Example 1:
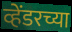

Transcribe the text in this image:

व्हेंडरच्या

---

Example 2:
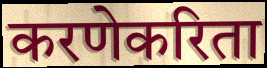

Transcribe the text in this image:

करणेकरिता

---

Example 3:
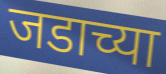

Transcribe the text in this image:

जडाच्या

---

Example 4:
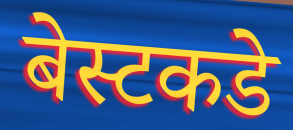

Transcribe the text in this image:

बेस्टकडे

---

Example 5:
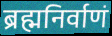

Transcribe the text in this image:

ब्रह्मनिर्वाणं